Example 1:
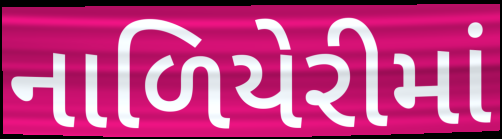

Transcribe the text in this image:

નાળિયેરીમાં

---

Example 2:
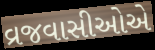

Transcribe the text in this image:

વ્રજવાસીઓએ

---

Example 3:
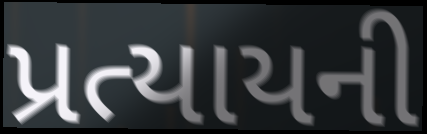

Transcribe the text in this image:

પ્રત્યાયની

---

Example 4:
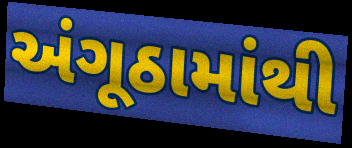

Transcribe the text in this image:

અંગૂઠામાંથી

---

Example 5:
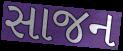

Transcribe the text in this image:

સાજન